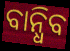
ବାନ୍ଧିବ